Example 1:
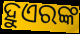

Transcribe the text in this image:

ହୁଏରଙ୍କ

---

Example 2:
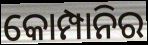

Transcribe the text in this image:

କୋମ୍ପାନିର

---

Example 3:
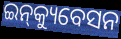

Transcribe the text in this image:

ଇନ୍‌କ୍ୟୁବେସନ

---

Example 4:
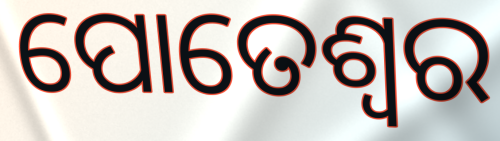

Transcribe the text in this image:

ପୋତେଶ୍ବର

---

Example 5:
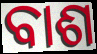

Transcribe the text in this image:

ବାଶ